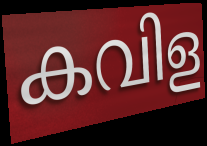
കവിള